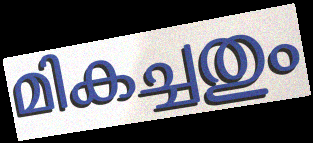
മികച്ചതും